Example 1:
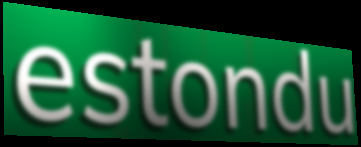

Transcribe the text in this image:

estondu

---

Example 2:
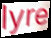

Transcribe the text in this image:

lyre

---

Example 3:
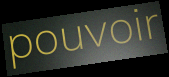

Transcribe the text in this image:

pouvoir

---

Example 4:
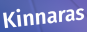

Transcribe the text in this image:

Kinnaras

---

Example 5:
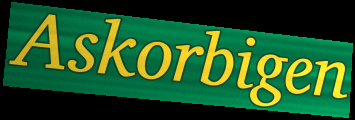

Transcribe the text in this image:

Askorbigen